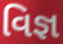
વિજ્ઞ